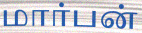
மார்பன்